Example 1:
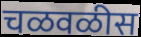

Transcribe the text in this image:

चळवळीस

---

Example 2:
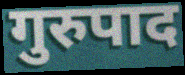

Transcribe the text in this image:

गुरुपाद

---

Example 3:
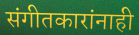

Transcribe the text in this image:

संगीतकारांनाही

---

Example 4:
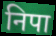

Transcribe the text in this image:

निपा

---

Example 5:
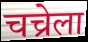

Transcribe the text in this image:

चच्रेला